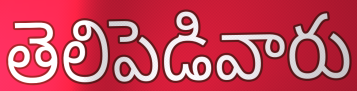
తెలిపెడివారు